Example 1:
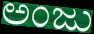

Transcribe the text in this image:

ಅಂಜು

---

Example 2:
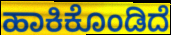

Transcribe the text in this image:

ಹಾಕಿಕೊಂಡಿದೆ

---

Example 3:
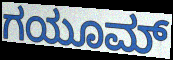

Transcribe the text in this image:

ಗಯೂಮ್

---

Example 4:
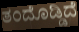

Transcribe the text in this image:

ತಂದೊಡ್ಡಿದೆ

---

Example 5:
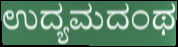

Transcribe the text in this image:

ಉದ್ಯಮದಂಥ